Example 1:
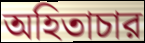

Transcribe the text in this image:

অহিতাচার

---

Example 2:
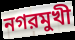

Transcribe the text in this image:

নগরমুখী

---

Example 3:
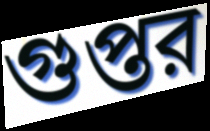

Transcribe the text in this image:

গুপ্তর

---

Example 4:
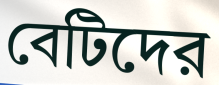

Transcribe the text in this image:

বেটিদের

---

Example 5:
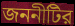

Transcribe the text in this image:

জননীটির